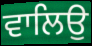
ਵਾਲਿਉ